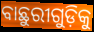
ବାଛୁରୀଗୁଡ଼ିକୁ